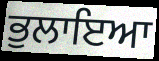
ਭੁਲਾਇਆ